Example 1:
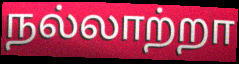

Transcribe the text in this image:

நல்லாற்றா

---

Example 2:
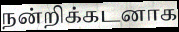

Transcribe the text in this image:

நன்றிக்கடனாக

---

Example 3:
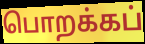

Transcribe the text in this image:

பொறக்கப்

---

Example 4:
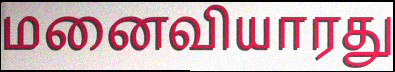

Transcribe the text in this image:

மனைவியாரது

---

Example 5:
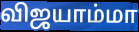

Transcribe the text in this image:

விஜயாம்மா